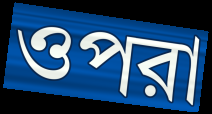
ওপরা